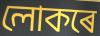
লোকৰে